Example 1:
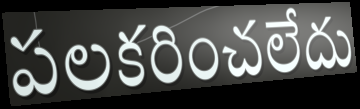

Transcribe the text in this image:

పలకరించలేదు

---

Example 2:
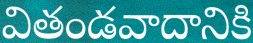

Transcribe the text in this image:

వితండవాదానికి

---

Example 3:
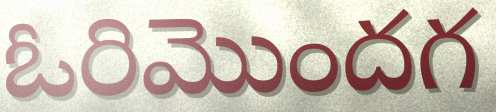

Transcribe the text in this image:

ఓరిమొందగ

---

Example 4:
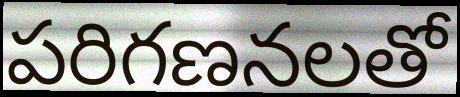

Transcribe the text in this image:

పరిగణనలతో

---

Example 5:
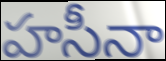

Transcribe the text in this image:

హసీనా